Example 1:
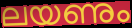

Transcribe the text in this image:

ലയണും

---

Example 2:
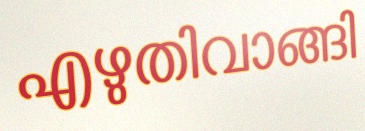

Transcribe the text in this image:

എഴുതിവാങ്ങി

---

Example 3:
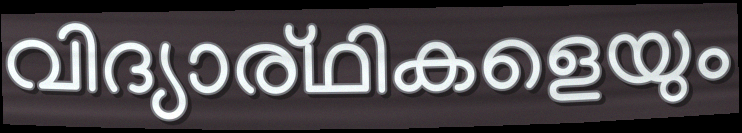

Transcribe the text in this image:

വിദ്യാര്ഥികളെയും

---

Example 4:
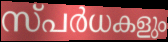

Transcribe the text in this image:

സ്പർധകളും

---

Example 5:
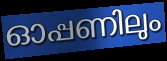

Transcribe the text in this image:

ഓപ്പണിലും